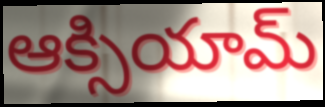
ఆక్సియామ్